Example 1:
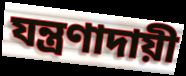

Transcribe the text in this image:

যন্ত্রণাদায়ী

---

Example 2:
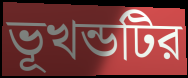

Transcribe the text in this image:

ভূখন্ডটির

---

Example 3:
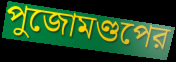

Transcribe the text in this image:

পুজোমণ্ডপের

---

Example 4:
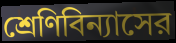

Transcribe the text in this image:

শ্রেণিবিন্যাসের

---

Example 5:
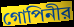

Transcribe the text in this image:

গোপিনীর